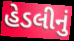
હેડલીનું